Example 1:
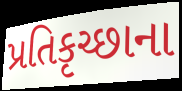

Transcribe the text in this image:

પ્રતિકૃચ્છાના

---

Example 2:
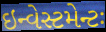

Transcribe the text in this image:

ઇન્વેસ્ટમેન્ટઃ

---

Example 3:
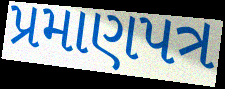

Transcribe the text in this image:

પ્રમાણપત્ર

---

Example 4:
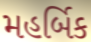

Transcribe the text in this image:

મહર્બિક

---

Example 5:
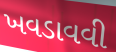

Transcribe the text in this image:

ખવડાવવી